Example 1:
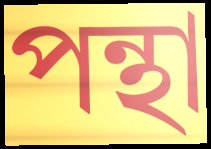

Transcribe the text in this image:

পন্থা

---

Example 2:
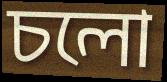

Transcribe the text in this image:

চলো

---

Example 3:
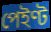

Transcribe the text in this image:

পেইণ্ট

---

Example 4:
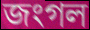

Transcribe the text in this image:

জংগল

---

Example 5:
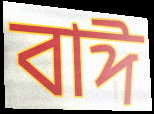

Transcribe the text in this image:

বাঈ